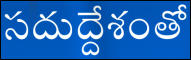
సదుద్దేశంతో